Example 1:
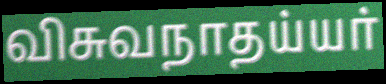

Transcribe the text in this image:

விசுவநாதய்யர்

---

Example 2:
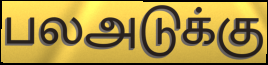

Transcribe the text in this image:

பலஅடுக்கு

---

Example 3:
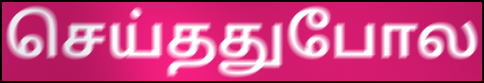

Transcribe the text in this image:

செய்ததுபோல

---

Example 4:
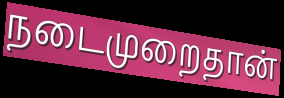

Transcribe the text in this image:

நடைமுறைதான்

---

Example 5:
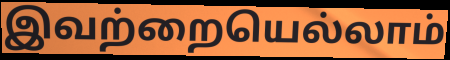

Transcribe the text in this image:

இவற்றையெல்லாம்